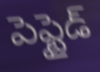
పెప్టైడ్